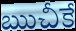
ఋచీకే